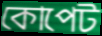
কোপেট